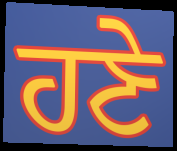
ਹਣੇ